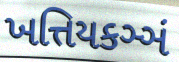
ખત્તિયકઞ્ઞં